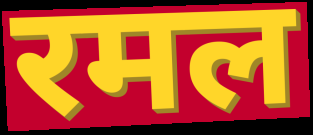
रमल